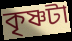
কৃষ্ণটা